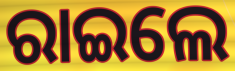
ରାଇଲେ